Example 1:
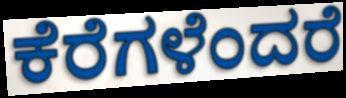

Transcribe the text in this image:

ಕೆರೆಗಳೆಂದರೆ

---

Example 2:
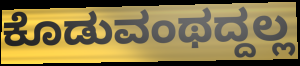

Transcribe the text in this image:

ಕೊಡುವಂಥದ್ದಲ್ಲ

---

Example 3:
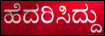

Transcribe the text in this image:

ಹೆದರಿಸಿದ್ದು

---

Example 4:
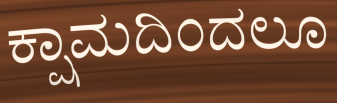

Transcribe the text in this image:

ಕ್ಷಾಮದಿಂದಲೂ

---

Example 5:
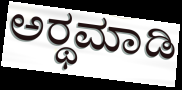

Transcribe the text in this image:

ಅರ್‍ಥಮಾಡಿ